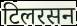
टिलरसन